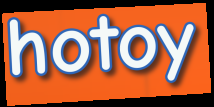
hotoy